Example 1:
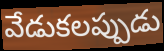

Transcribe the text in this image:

వేడుకలప్పుడు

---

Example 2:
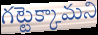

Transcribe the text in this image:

గట్టెక్కామని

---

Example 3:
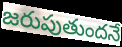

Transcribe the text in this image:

జరుపుతుందనే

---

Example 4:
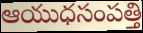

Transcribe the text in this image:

ఆయుధసంపత్తి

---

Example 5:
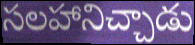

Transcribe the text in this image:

సలహానిచ్చాడు